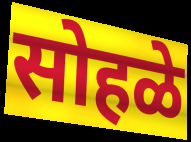
सोहळे